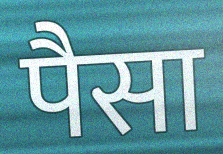
पैसा